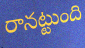
రానట్టుంది